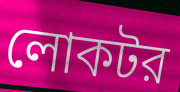
লোকটর